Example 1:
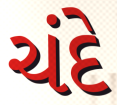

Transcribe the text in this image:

ચંદે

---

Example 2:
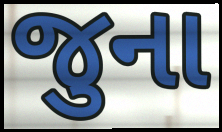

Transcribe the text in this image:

જુના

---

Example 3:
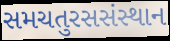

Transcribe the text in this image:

સમચતુરસસંસ્થાન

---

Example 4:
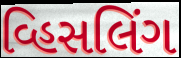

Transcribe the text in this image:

વ્હિસલિંગ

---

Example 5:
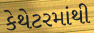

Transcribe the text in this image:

કેથેટરમાંથી